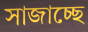
সাজাচ্ছে